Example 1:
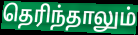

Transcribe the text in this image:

தெரிந்தாலும்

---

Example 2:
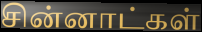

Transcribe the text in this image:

சின்னாட்கள்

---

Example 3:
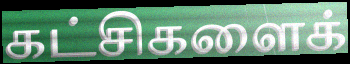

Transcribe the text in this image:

கட்சிகளைக்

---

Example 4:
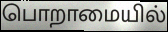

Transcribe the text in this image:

பொறாமையில்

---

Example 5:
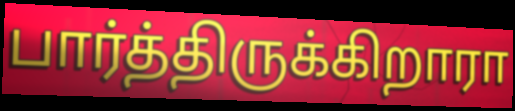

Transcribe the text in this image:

பார்த்திருக்கிறாரா